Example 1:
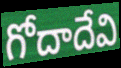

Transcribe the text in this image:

గోదాదేవి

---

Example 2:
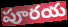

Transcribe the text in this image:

పూరయ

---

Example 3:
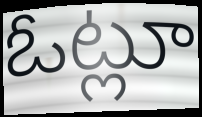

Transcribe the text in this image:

ఓట్లూ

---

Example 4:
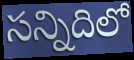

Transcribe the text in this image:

సన్నిదిలో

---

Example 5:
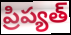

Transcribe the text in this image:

ప్రిప్యత్